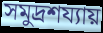
সমুদ্রশয্যায়